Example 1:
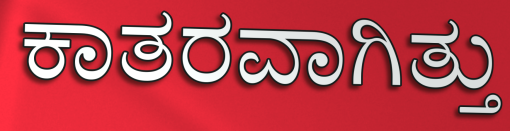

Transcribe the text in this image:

ಕಾತರವಾಗಿತ್ತು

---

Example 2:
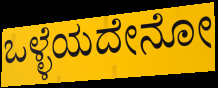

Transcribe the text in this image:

ಒಳ್ಳೆಯದೇನೋ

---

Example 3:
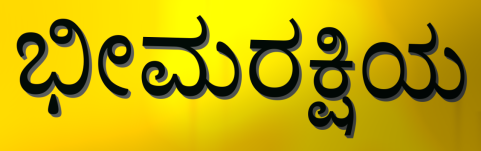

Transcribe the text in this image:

ಭೀಮರಕ್ಷಿಯ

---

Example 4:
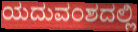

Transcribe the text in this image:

ಯದುವಂಶದಲ್ಲಿ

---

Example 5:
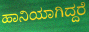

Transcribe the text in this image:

ಹಾನಿಯಾಗಿದ್ದರೆ